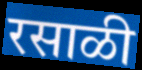
रसाळी